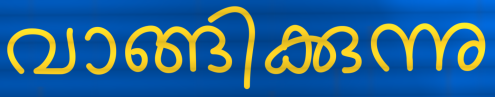
വാങ്ങിക്കുന്നു